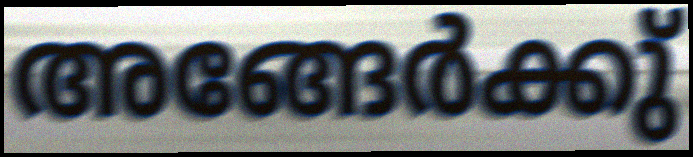
അങ്ങേർക്കു്